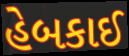
હેબકાઈ